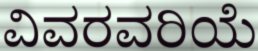
ವಿವರವರಿಯೆ